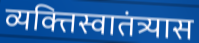
व्यक्तिस्वातंत्र्यास